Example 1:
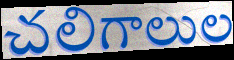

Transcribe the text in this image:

చలిగాలుల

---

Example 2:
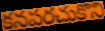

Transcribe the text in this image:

కనపరచుకొని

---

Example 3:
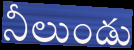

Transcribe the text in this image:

నీలుండు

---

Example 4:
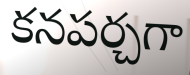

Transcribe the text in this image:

కనపర్చగా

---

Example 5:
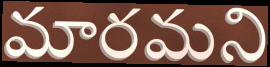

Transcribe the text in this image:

మారమని